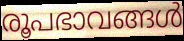
രൂപഭാവങ്ങൾ